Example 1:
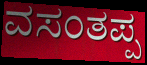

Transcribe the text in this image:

ವಸಂತಪ್ಪ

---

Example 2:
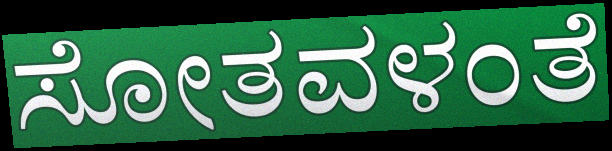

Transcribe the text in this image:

ಸೋತವಳಂತೆ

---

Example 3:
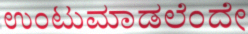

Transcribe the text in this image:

ಉಂಟುಮಾಡಲೆಂದೇ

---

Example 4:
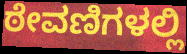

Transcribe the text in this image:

ಠೇವಣಿಗಳಲ್ಲಿ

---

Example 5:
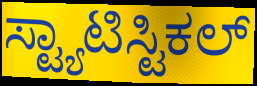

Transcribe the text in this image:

ಸ್ಟ್ಯಾಟಿಸ್ಟಿಕಲ್